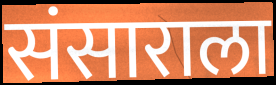
संसाराला